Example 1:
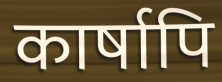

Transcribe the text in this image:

कार्षापि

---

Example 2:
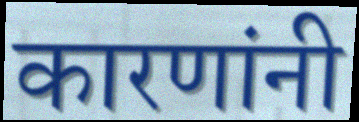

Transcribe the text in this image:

कारणांनी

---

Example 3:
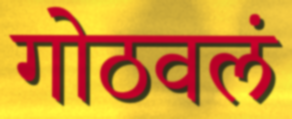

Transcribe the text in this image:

गोठवलं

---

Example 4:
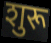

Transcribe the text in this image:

शुरू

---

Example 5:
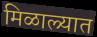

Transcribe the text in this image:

मिळाल्यात